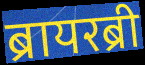
ब्रायरब्री